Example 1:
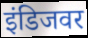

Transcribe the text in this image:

इंडिजवर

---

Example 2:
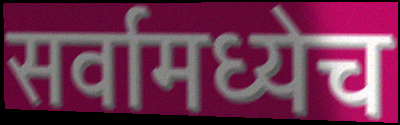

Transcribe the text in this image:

सर्वामध्येच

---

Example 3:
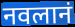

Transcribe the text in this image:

नवलानं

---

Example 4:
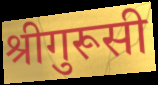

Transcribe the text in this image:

श्रीगुरूसी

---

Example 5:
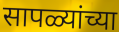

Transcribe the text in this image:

सापळ्यांच्या